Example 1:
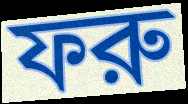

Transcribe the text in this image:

ফরু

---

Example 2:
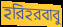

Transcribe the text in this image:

হরিহরবাবু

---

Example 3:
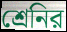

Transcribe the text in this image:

শ্রেনির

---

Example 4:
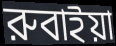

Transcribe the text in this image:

রুবাইয়া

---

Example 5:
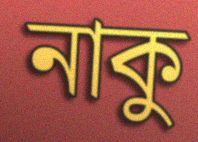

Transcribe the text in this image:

নাকু